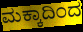
ಮಕ್ಕಾದಿಂದ